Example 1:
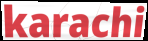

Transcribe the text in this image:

karachi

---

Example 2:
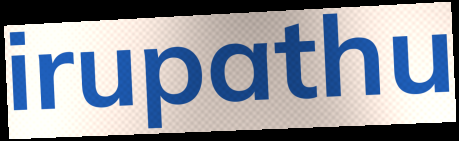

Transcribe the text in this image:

irupathu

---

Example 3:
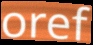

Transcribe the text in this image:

oref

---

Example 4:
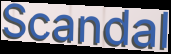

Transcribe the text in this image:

Scandal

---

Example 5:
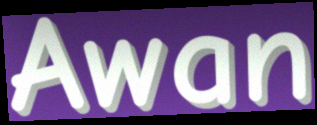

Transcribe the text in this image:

Awan